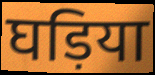
घड़िया